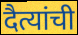
दैत्यांची